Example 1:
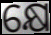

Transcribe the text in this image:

କ୍ଷେ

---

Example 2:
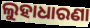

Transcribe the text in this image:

ଲୁହାଧାରଣା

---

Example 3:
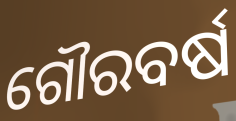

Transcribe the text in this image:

ଗୌରବର୍ଷ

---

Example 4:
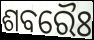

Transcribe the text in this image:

ଶବରୈଃ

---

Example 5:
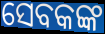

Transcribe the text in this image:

ସେବକଙ୍କ